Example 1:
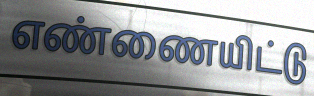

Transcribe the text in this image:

எண்ணையிட்டு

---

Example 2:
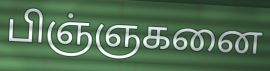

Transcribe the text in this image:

பிஞ்ஞகனை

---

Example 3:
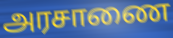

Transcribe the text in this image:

அரசாணை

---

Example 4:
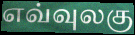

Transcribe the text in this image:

எவ்வுலகு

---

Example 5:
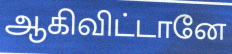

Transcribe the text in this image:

ஆகிவிட்டானே